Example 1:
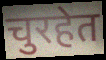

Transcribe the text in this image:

चुरहेत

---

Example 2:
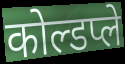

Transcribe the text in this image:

कोल्डप्ले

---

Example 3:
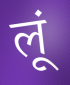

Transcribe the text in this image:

लूं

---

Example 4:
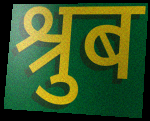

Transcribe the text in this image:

श्रुब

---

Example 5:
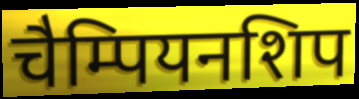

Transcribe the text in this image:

चैम्पियनशिप